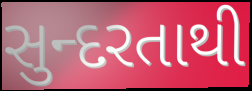
સુન્દરતાથી